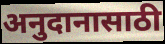
अनुदानासाठी